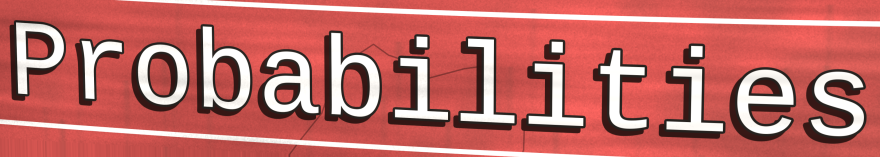
Probabilities